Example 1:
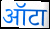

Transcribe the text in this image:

ऑटा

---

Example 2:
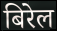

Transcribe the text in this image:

बिरेल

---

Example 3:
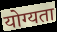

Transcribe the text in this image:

योग्‍यता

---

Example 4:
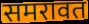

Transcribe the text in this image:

समरावत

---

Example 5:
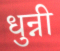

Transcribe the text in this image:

धुन्नी